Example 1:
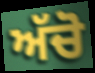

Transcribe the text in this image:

ਅੱਚੋ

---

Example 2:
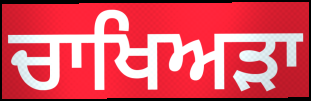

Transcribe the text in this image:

ਚਾਖਿਅੜਾ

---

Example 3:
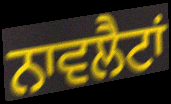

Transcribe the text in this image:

ਨਾਵਲੈਟਾਂ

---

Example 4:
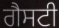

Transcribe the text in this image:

ਗੈਸਟੀ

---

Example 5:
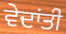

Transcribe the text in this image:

ਵੇਦਾਂਤੀ